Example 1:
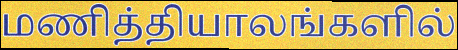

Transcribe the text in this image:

மணித்தியாலங்களில்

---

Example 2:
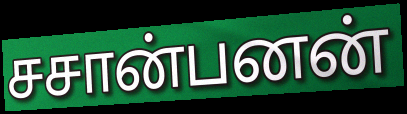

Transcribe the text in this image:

சசான்பனன்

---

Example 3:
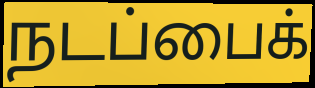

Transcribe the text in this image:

நடப்பைக்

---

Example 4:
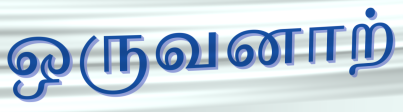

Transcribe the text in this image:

ஒருவனாற்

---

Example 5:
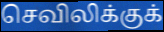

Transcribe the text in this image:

செவிலிக்குக்